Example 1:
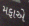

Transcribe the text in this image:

મફાએ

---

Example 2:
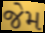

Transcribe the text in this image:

જેમ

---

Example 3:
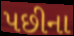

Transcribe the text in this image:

પછીના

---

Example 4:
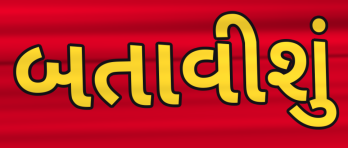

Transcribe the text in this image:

બતાવીશું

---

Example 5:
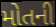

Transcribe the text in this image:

મોતની